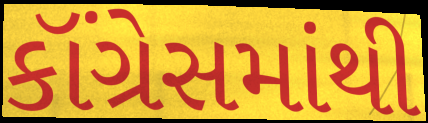
કૉંગ્રેસમાંથી